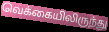
வெக்கையிலிருந்து